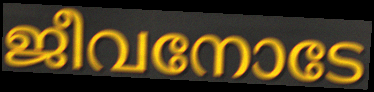
ജീവനോടേ